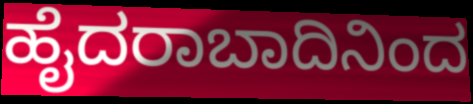
ಹೈದರಾಬಾದಿನಿಂದ